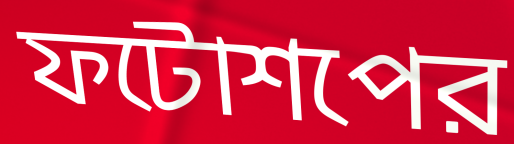
ফটোশপের